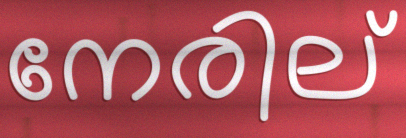
നേരില്